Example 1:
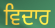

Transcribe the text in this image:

ਵਿਦਾਰ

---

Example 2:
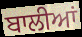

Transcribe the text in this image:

ਬਾਲੀਆਂ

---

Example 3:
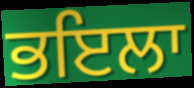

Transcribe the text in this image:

ਭਇਲਾ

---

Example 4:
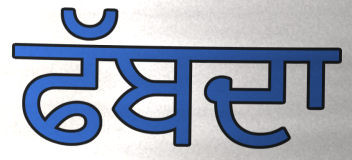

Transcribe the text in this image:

ਫੱਬਦਾ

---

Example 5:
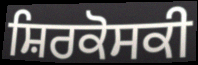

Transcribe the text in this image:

ਸ਼ਿਰਕੋਸਕੀ